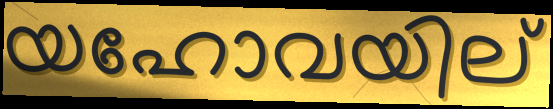
യഹോവയില്